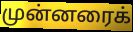
முன்னரைக்